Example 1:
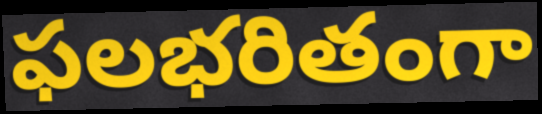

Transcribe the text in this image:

ఫలభరితంగా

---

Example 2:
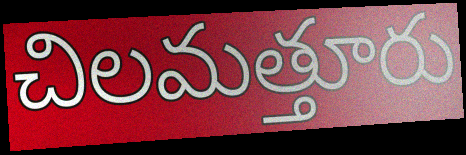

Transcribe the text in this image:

చిలమత్తూరు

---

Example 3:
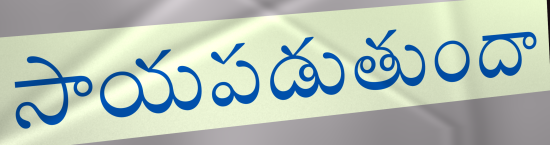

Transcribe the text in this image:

సాయపడుతుందా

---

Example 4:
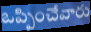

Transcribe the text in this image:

ఒప్పించేవారు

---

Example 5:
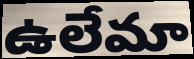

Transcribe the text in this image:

ఉలేమా